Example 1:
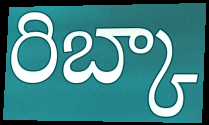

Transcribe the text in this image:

రిబ్కా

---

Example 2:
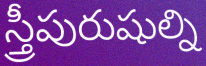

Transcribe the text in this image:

స్త్రీపురుషుల్ని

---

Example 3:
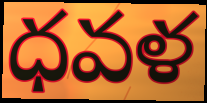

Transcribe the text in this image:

ధవళ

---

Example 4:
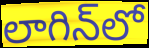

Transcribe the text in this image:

లాగిన్‌లో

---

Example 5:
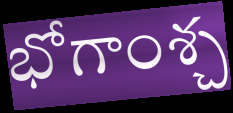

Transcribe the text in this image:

భోగాంశ్చ